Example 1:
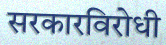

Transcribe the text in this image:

सरकारविरोधी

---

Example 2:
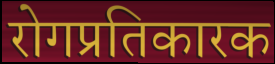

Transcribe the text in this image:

रोगप्रतिकारक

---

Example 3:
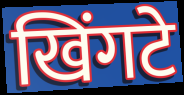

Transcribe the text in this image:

खिंगटे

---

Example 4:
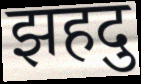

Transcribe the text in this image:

झहदु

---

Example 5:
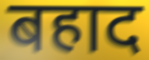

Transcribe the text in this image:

बहाद